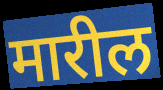
मारील